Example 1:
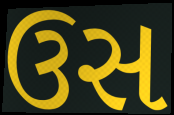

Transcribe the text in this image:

ઉસ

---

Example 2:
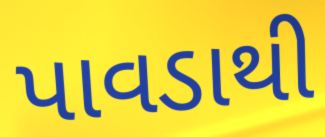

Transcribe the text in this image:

પાવડાથી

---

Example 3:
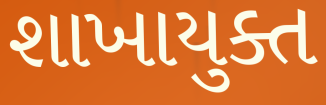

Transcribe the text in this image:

શાખાયુક્ત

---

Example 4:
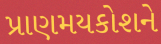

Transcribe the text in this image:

પ્રાણમયકોશને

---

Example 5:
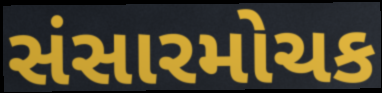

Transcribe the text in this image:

સંસારમોચક